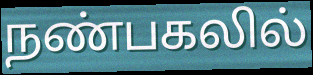
நண்பகலில்